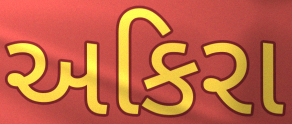
અકિરા